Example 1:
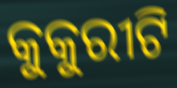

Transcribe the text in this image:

କୁକୁରୀଟି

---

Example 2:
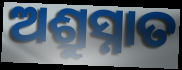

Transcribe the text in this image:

ଅଶ୍ରୁସ୍ନାତ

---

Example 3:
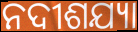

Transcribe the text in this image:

ନଦୀଶଯ୍ୟା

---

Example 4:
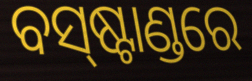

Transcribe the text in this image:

ବସ୍‌ଷ୍ଟାଣ୍ଡରେ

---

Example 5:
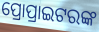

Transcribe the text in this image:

ପ୍ରୋପ୍ରାଇଟରଙ୍କ